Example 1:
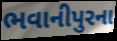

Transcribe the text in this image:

ભવાનીપુરના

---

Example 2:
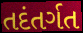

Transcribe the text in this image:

તદંતર્ગત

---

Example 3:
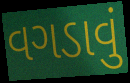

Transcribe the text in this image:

વગડાવું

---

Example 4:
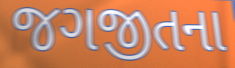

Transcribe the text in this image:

જગજીતના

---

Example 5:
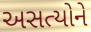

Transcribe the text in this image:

અસત્યોને